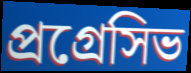
প্রগ্রেসিভ